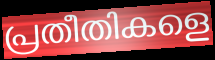
പ്രതീതികളെ